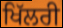
ਖਿੱਲਰੀ